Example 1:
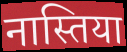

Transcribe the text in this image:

नास्तिया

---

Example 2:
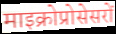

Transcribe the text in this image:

माइक्रोप्रोसेसरों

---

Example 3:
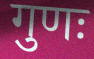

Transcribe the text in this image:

गुणः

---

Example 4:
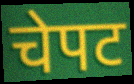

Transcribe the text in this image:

चेपट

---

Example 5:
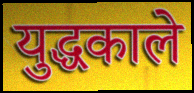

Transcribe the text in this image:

युद्धकाले